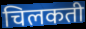
चिलकती